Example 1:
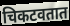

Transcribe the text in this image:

चिकटवतात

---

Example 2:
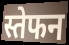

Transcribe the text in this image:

स्तेफन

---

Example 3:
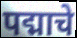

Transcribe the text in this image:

पद्माचे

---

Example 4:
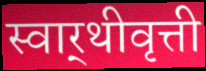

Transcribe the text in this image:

स्वार्थीवृत्ती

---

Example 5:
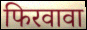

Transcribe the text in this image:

फिरवावा